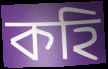
কহি